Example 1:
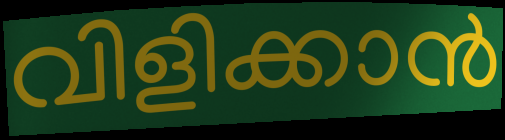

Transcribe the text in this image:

വിളിക്കാൻ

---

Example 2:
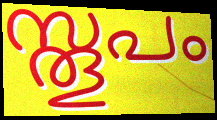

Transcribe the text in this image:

സ്തൂപം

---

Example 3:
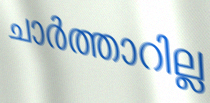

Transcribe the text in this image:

ചാർത്താറില്ല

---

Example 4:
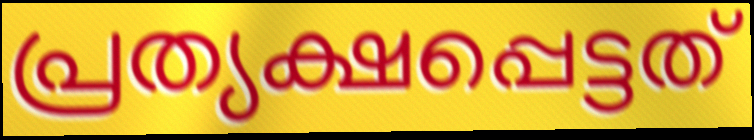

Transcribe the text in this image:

പ്രത്യക്ഷപ്പെട്ടത്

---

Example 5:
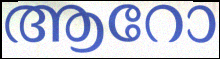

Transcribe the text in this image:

ആറോ